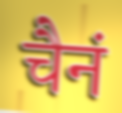
चैनं